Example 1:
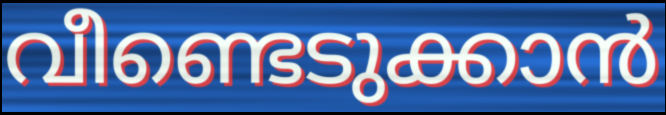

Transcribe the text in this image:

വീണ്ടെടുക്കാൻ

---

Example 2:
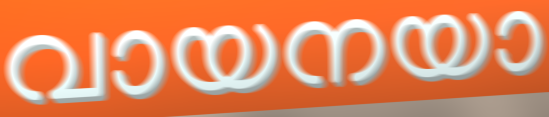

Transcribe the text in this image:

വായനയാ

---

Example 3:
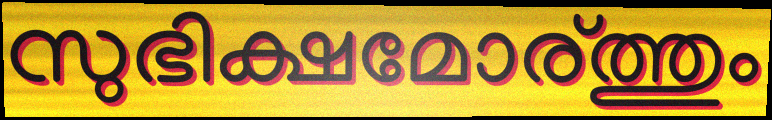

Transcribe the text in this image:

സുഭിക്ഷമോര്ത്തും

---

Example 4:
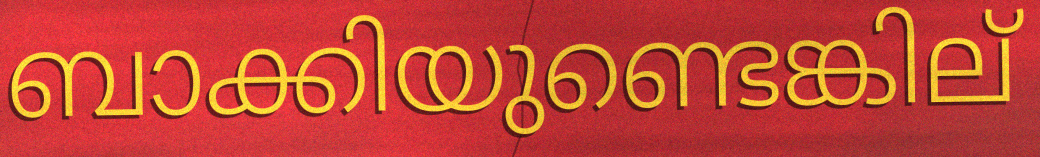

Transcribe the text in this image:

ബാക്കിയുണ്ടെങ്കില്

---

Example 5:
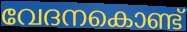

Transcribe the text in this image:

വേദനകൊണ്ട്